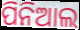
ପିନିଆଲ